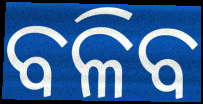
ବଳିବ